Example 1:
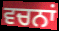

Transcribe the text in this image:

ਵਚਨਾਂ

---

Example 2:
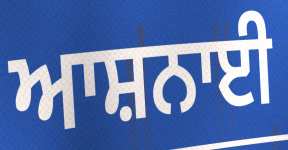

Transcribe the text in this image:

ਆਸ਼ਨਾਈ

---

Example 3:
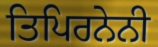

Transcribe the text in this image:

ਤਿਪਿਰਨੇਨੀ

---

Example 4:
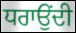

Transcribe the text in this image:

ਧਰਾਉਂਦੀ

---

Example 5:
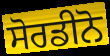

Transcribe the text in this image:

ਸੋਰਡੀਨੋ